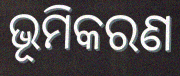
ଭୂମିକରଣ